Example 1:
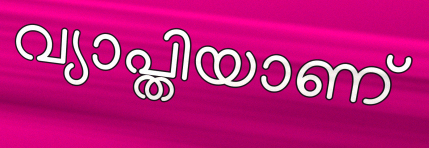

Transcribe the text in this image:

വ്യാപ്തിയാണ്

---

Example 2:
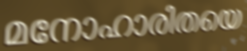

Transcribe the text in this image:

മനോഹാരിതയെ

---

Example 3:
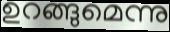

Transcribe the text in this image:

ഉറങ്ങുമെന്നു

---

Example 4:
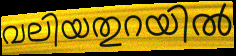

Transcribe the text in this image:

വലിയതുറയിൽ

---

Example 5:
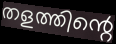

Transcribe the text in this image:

തളത്തിന്റെ